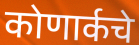
कोणार्कचे